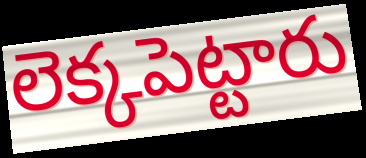
లెక్కపెట్టారు